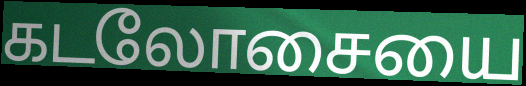
கடலோசையை